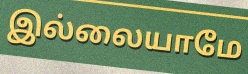
இல்லையாமே